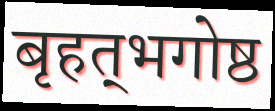
बृहत्‌भगोष्ठ